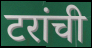
टरांची